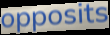
opposits